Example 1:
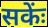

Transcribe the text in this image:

सकेंः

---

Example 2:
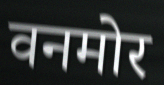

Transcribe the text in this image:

वनमोर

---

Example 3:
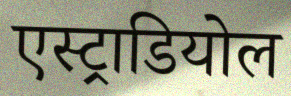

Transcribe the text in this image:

एस्ट्राडियोल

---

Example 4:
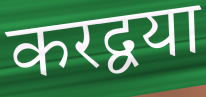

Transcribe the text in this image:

करद्वया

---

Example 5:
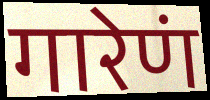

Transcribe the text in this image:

गारेणं